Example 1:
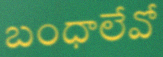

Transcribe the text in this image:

బంధాలేవో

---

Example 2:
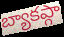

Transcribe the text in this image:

బ్యాకప్గా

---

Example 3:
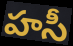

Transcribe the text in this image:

హసీ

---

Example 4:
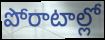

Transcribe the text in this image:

పోరాటాల్లో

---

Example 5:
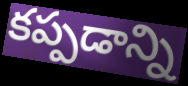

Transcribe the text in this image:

కప్పడాన్ని